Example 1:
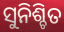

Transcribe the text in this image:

ସୁନିଶ୍ଚିତ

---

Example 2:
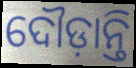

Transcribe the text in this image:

ଦୌଡ଼ାନ୍ତି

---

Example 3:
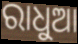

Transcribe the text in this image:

ରାଧୁଆ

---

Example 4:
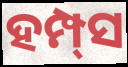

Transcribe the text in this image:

ହମ୍ପ୍‌ସ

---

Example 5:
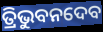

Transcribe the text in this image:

ତ୍ରିଭୁବନଦେବ